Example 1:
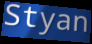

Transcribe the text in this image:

Styan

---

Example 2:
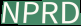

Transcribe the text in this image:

NPRD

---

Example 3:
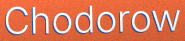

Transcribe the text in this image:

Chodorow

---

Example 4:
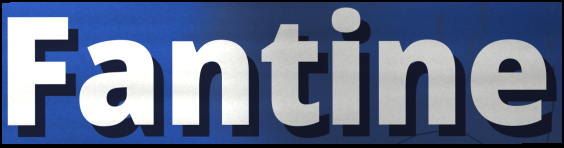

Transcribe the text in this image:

Fantine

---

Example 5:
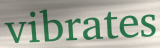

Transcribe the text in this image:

vibrates